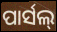
ପାର୍ସଲ୍